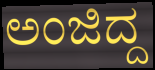
ಅಂಜಿದ್ದ